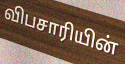
விபசாரியின்